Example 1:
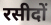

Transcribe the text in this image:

रसीदों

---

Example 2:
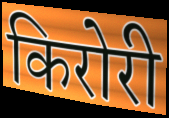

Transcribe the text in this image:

किरोरी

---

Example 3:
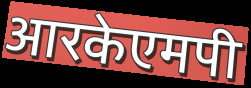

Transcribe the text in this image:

आरकेएमपी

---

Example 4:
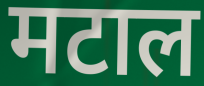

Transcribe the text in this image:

मटाल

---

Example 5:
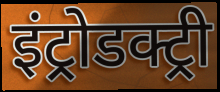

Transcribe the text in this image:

इंट्रोडक्ट्री